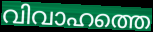
വിവാഹത്തെ